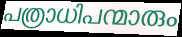
പത്രാധിപന്മാരും